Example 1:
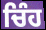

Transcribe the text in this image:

ਚਿੰਹ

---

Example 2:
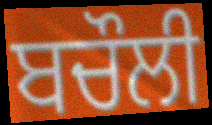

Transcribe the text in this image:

ਬਚੌਲੀ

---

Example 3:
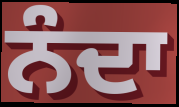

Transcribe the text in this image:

ਨੰਦਾ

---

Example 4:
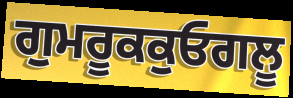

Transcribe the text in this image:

ਗੁਮਰੂਕਕੁਓਗਲੂ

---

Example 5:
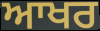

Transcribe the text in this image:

ਆਖਰ